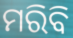
ମରିବି